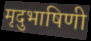
मृदुभाषिणी